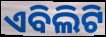
ଏବିଲିଟି